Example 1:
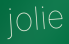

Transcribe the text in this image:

jolie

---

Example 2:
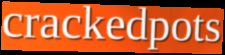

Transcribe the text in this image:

crackedpots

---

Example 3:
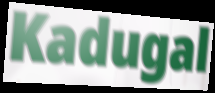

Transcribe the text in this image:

Kadugal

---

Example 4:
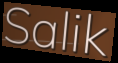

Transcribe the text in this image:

Salik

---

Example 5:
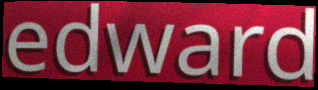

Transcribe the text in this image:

edward